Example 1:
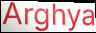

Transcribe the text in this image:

Arghya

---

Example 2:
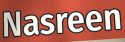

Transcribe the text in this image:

Nasreen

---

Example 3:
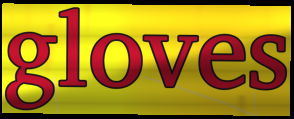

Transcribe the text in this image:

gloves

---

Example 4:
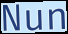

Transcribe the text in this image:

Nun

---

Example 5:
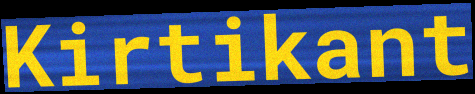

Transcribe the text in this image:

Kirtikant